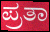
ಪ್ರತಾ